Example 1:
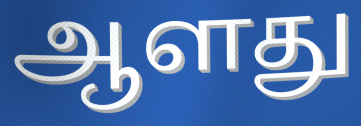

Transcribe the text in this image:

ஆளது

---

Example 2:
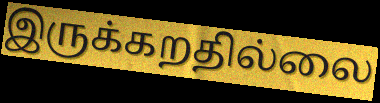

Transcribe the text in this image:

இருக்கறதில்லை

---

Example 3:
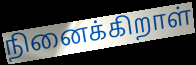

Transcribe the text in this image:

நினைக்கிறாள்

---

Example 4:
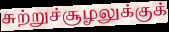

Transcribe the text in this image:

சுற்றுச்சூழலுக்குக்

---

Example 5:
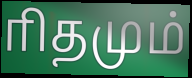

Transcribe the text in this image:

ரிதமும்